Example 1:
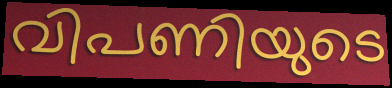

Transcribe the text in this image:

വിപണിയുടെ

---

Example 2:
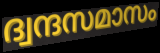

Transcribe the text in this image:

ദ്വന്ദസമാസം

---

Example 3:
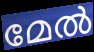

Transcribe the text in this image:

മേൽ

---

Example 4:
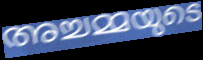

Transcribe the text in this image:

അച്ചമ്മയുടെ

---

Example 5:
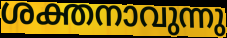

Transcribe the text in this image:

ശക്തനാവുന്നു